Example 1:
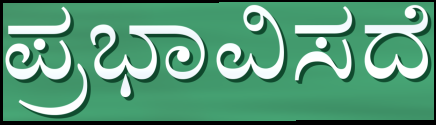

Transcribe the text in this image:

ಪ್ರಭಾವಿಸದೆ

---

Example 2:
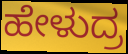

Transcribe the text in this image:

ಹೇಳುದ್ರ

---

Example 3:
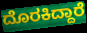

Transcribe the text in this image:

ದೊರಕಿದ್ದಾರೆ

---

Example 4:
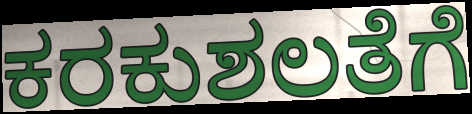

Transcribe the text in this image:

ಕರಕುಶಲತೆಗೆ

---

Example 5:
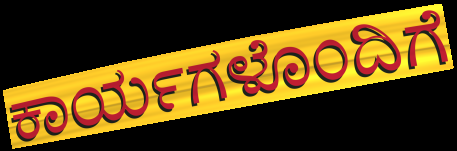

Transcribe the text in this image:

ಕಾರ್ಯಗಳೊಂದಿಗೆ